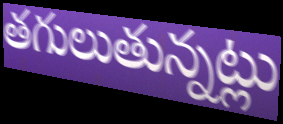
తగులుతున్నట్లు